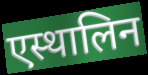
एस्थालिन